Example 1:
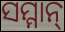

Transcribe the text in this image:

ସମ୍ମାନ୍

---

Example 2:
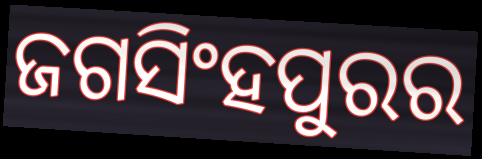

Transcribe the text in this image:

ଜଗସିଂହପୁରର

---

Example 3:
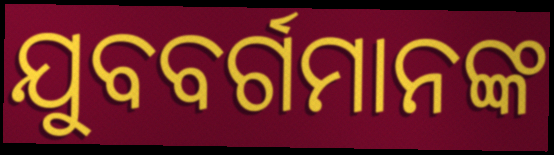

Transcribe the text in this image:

ଯୁବବର୍ଗମାନଙ୍କ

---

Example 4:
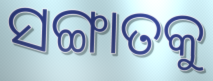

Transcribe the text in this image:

ସଙ୍ଗାତକୁ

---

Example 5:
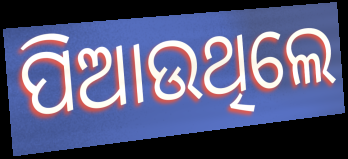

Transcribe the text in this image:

ପିଆଉଥିଲେ